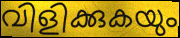
വിളിക്കുകയും